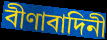
বীণাবাদিনী